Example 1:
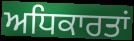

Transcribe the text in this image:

ਅਧਿਕਾਰਤਾਂ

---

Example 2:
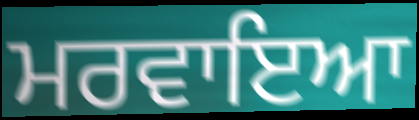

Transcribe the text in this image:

ਮਰਵਾਇਆ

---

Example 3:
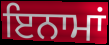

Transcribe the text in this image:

ਇਨਾਮਾਂ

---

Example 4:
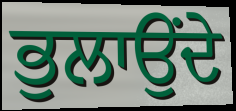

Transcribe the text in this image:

ਭੁਲਾਉਂਦੇ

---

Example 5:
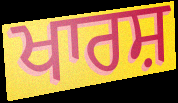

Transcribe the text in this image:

ਖਾਰਸ਼